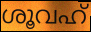
ശൂവഹ്